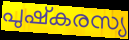
പുഷ്കരസ്യ